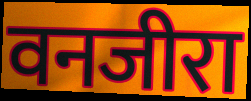
वनजीरा